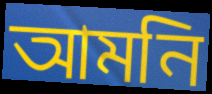
আমনি